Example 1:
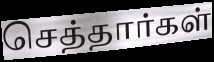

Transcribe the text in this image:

செத்தார்கள்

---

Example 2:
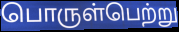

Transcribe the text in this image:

பொருள்பெற்று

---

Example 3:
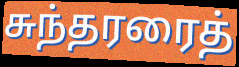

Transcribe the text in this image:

சுந்தரரைத்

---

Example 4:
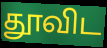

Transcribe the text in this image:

தூவிட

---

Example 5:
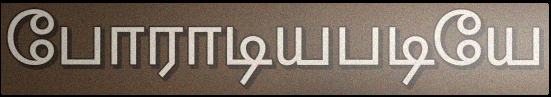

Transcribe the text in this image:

போராடியபடியே